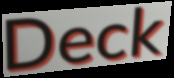
Deck